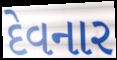
દેવનાર